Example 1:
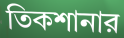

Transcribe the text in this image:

তিকশানার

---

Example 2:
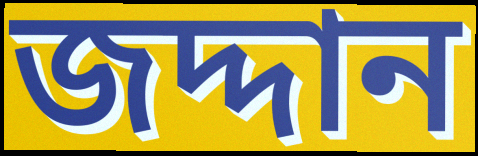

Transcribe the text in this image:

জদ্দান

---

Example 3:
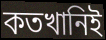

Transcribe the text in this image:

কতখানিই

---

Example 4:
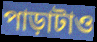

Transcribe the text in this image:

পাড়াটাও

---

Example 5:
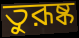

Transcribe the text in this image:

তুরূষ্ক